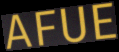
AFUE